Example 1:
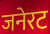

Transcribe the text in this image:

जनेरट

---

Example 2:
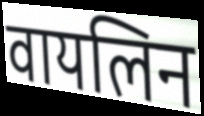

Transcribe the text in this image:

वायलिन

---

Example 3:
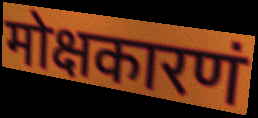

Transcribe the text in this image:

मोक्षकारणं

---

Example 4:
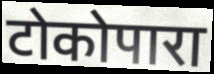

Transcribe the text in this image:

टोकोपारा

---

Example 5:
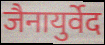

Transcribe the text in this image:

जैनायुर्वेद